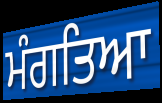
ਮੰਗਤਿਆ